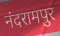
नंदरामपुर